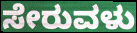
ಸೇರುವಳು